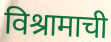
विश्रामाची